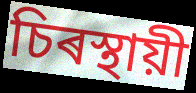
চিৰস্থায়ী